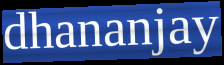
dhananjay